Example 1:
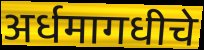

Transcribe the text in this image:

अर्धमागधीचे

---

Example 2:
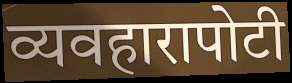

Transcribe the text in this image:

व्यवहारापोटी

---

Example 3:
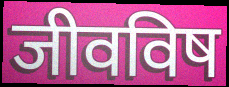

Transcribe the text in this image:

जीवविष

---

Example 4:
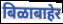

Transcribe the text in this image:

बिळाबाहेर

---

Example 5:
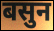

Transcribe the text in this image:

बसुन